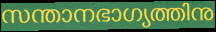
സന്താനഭാഗ്യത്തിനു